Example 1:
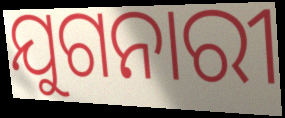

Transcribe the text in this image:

ଯୁଗନାରୀ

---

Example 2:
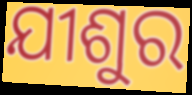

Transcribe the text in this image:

ଯୀଶୁର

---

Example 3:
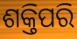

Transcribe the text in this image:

ଶକ୍ତିପରି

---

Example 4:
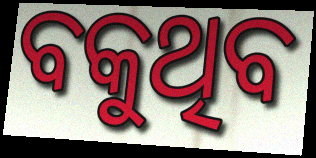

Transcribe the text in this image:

ବକୁଥିବ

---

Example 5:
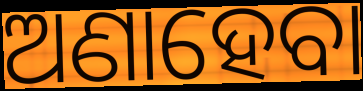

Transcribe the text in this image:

ଅଣାହେବା